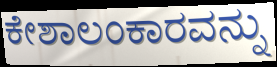
ಕೇಶಾಲಂಕಾರವನ್ನು